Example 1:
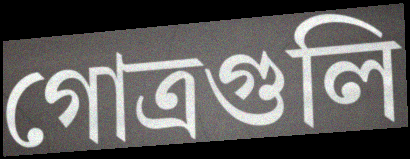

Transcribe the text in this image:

গোত্রগুলি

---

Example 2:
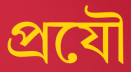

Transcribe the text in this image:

প্রযৌ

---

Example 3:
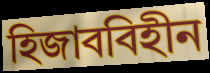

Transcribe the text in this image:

হিজাববিহীন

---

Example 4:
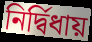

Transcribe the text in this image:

নির্দ্বিধায়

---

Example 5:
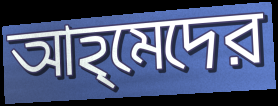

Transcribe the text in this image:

আহ্‌মেদের